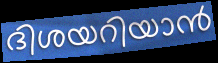
ദിശയറിയാൻ